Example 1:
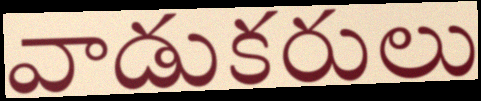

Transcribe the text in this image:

వాడుకరులు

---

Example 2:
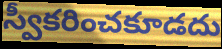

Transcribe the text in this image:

స్వీకరించకూడదు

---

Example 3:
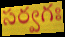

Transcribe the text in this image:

సర్వగః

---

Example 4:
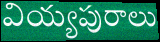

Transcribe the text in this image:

వియ్యపురాలు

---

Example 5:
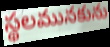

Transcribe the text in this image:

స్థలమునకును